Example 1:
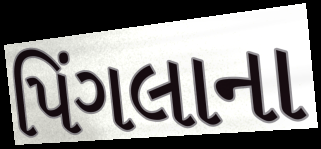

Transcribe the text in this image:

પિંગલાના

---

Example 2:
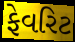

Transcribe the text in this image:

ફેવરિટ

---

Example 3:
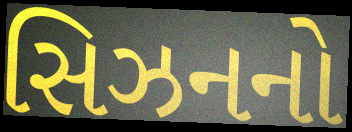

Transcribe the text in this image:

સિઝનનો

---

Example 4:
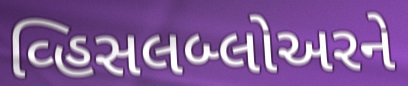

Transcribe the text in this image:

વ્હિસલબ્લોઅરને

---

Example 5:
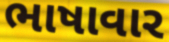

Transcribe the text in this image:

ભાષાવાર